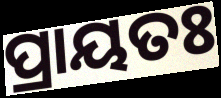
ପ୍ରାୟତଃ